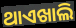
ଥାଏଖାଲି